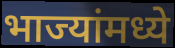
भाज्यांमध्ये